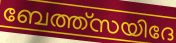
ബേത്ത്സയിദേ